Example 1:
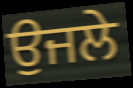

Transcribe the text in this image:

ਉਜਲੇ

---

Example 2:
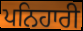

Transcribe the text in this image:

ਪਨਿਹਾਰੀ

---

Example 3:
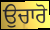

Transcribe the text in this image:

ਉਚਾਰੋ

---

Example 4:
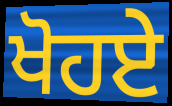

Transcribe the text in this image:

ਖੋਹਏ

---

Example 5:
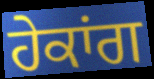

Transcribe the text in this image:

ਹੇਕਾਂਗ